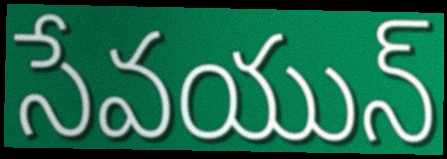
సేవయున్